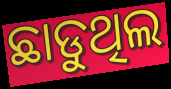
ଛାଡୁଥିଲ